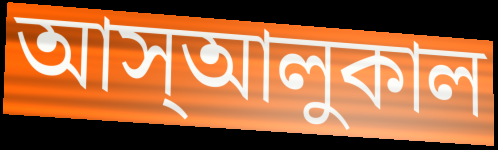
আস্আলুকাল